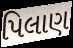
પિલાણ